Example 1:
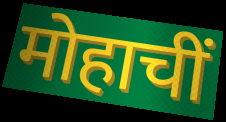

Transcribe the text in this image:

मोहाचीं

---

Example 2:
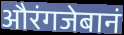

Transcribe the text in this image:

औरंगजेबानं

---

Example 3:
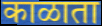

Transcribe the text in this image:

काळाता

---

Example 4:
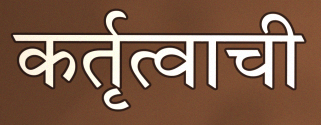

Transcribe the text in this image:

कर्तृत्वाची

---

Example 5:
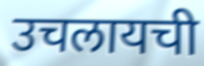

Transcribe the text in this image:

उचलायची